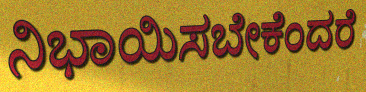
ನಿಭಾಯಿಸಬೇಕೆಂದರೆ